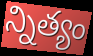
న్నిత్యం